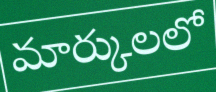
మార్కులలో